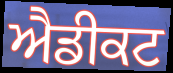
ਐਡੀਕਟ